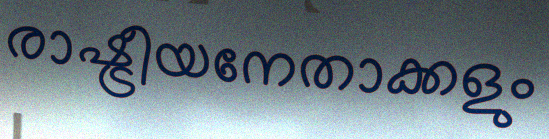
രാഷ്ട്രീയനേതാക്കളും